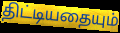
திட்டியதையும்